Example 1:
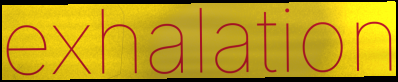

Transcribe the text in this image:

exhalation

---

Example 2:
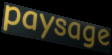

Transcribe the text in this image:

paysage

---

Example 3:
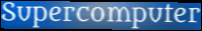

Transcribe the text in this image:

Supercomputer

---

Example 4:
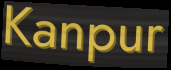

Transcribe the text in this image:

Kanpur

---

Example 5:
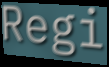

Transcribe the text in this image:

Regi